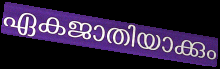
ഏകജാതിയാക്കും